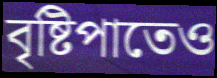
বৃষ্টিপাতেও